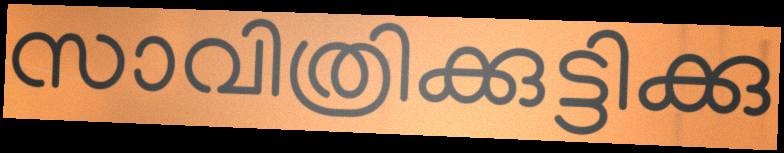
സാവിത്രിക്കുട്ടിക്കു